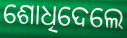
ଶୋଧିଦେଲେ